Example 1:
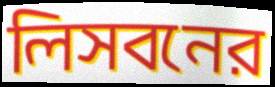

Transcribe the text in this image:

লিসবনের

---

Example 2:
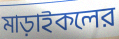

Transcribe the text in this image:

মাড়াইকলের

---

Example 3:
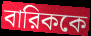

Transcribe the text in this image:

বারিককে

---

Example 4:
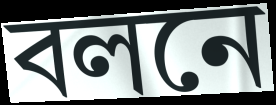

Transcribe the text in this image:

বলনে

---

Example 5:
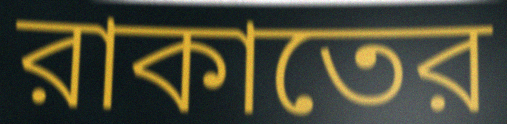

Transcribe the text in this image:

রাকাতের